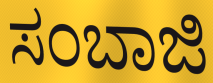
ಸಂಬಾಜಿ